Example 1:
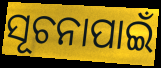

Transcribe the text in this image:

ସୂଚନାପାଇଁ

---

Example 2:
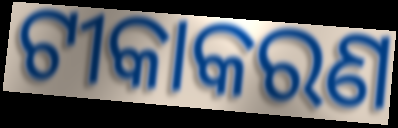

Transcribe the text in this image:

ଟୀକାକରଣ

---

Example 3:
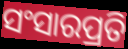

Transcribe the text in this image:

ସଂସାରପ୍ରତି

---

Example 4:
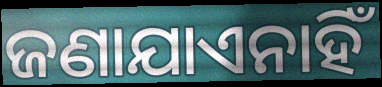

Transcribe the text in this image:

ଜଣାଯାଏନାହିଁ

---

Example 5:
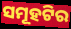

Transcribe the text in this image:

ସମୂହଟିର